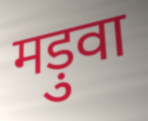
मड़ुवा